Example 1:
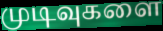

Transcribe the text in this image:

முடிவுகளை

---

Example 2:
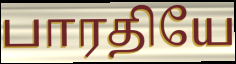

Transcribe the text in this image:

பாரதியே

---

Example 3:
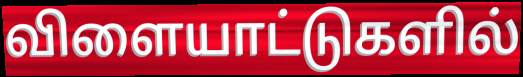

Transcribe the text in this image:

விளையாட்டுகளில்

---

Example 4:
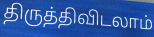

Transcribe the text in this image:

திருத்திவிடலாம்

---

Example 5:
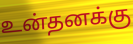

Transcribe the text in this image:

உன்தனக்கு